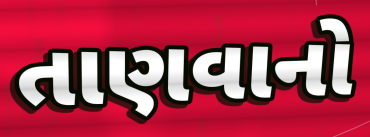
તાણવાનો